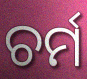
ଚର୍ମ